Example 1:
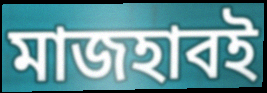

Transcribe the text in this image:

মাজহাবই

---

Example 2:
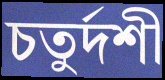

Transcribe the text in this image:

চতুর্দশী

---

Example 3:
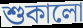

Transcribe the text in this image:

শুকালো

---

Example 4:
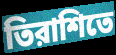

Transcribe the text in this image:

তিরাশিতে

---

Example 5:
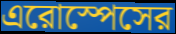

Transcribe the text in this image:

এরোস্পেসের